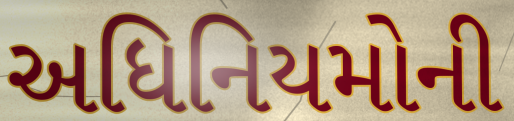
અધિનિયમોની